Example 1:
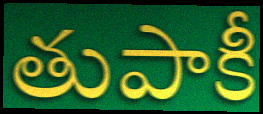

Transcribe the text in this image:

తుపాకీ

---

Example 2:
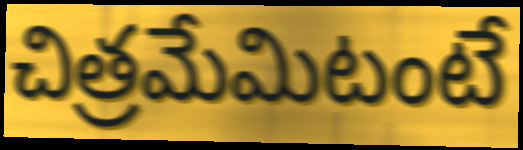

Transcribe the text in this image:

చిత్రమేమిటంటే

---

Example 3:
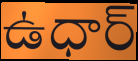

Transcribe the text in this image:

ఉధార్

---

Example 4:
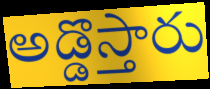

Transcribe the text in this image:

అడ్డొస్తారు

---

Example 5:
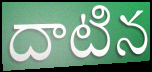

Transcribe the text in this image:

దాటిన